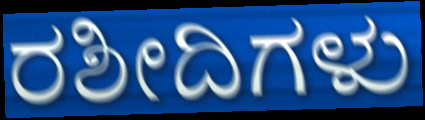
ರಶೀದಿಗಳು